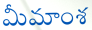
మీమాంశ